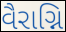
વૈરાગ્નિ